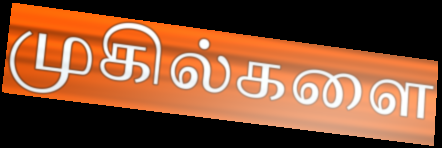
முகில்களை